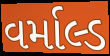
વર્માલ્ડ